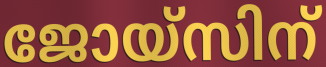
ജോയ്സിന്